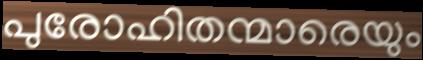
പുരോഹിതന്മാരെയും